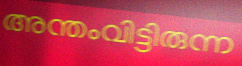
അന്തംവിട്ടിരുന്ന